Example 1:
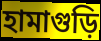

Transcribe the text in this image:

হামাগুড়ি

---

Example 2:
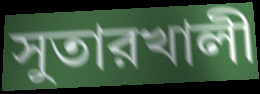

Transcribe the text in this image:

সুতারখালী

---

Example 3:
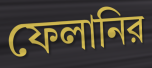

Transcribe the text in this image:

ফেলানির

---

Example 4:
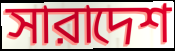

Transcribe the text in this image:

সারাদেশ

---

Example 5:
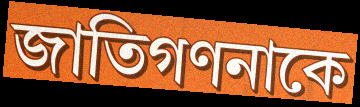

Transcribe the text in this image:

জাতিগণনাকে